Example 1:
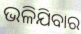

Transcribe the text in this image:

ଭଳିଯିବାର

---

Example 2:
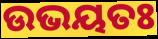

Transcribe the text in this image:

ଉଭୟତଃ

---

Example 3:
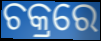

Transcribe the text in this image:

ଚକ୍ରରେ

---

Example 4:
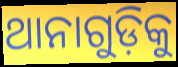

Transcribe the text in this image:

ଥାନାଗୁଡ଼ିକୁ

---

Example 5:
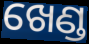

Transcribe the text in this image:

ଖେଣ୍ଡ